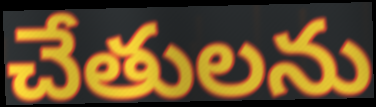
చేతులను